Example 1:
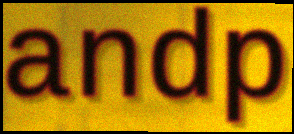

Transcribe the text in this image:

andp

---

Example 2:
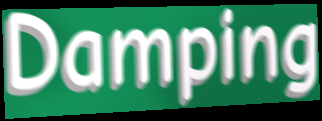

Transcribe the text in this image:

Damping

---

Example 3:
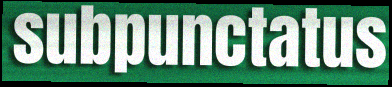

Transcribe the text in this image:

subpunctatus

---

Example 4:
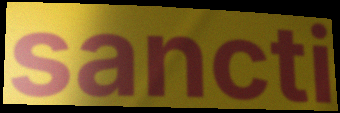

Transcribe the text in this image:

sancti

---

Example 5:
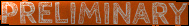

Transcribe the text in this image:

PRELIMINARY